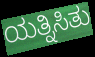
ಯತ್ನಿಸಿತು